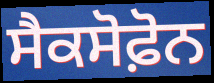
ਸੈਕਸੋਫ਼ੋਨ